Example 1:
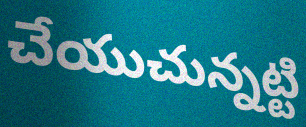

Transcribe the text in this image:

చేయుచున్నట్టి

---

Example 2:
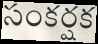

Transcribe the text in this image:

సంకర్షక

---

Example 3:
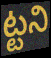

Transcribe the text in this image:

ట్టని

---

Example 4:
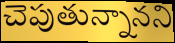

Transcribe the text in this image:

చెపుతున్నానని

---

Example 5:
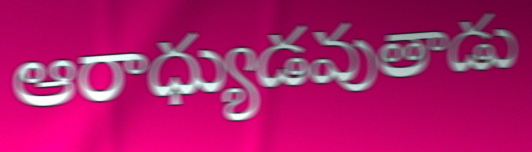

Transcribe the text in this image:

ఆరాధ్యుడవుతాడు